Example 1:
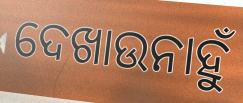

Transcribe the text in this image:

ଦେଖାଉନାହୁଁ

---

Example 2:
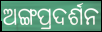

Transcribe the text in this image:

ଅଙ୍ଗପ୍ରଦର୍ଶନ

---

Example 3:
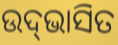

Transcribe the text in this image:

ଉଦ୍‌ଭାସିତ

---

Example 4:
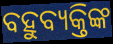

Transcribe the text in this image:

ବହୁବ୍ୟକ୍ତିଙ୍କ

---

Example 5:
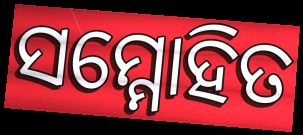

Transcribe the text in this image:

ସମ୍ମୋହିତ